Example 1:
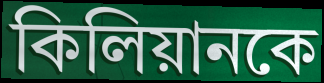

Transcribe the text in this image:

কিলিয়ানকে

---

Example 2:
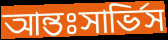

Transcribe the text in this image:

আন্তঃসার্ভিস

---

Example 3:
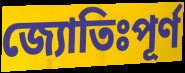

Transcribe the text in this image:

জ্যোতিঃপূর্ণ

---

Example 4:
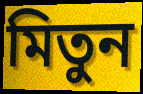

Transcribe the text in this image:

মিতুন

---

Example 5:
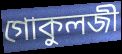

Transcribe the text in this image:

গোকুলজী